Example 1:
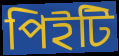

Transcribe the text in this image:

পিইটি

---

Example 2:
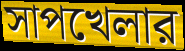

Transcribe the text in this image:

সাপখেলার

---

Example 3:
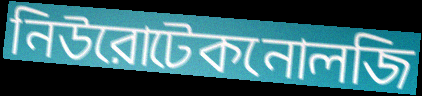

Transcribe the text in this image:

নিউরোটেকনোলজি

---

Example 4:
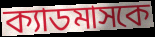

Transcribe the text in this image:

ক্যাডমাসকে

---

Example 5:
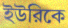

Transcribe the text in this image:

ইউরিকে